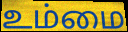
உம்மை